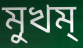
মুখম্